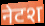
नेटश